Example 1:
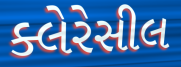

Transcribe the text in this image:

ક્લેરેસીલ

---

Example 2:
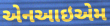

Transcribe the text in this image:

એનઆઇએમ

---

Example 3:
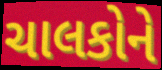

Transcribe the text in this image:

ચાલકોને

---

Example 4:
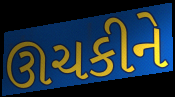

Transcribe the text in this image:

ઊચકીને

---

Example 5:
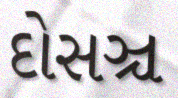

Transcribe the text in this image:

દોસઞ્ચ